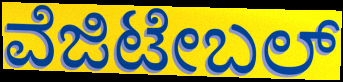
ವೆಜಿಟೇಬಲ್